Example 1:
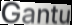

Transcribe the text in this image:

Gantu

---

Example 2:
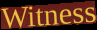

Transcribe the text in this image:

Witness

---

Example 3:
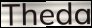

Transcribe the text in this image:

Theda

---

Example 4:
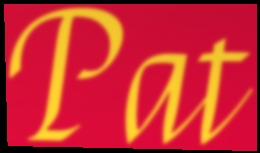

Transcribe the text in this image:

Pat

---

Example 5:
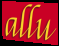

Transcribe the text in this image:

allu